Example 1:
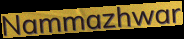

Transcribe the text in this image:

Nammazhwar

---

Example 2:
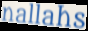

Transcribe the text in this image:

nallahs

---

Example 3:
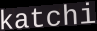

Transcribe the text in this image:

katchi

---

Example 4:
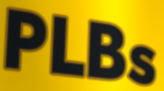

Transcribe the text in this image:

PLBs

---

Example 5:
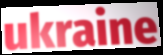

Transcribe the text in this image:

ukraine